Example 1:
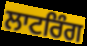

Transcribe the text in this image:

ਲਾਟਰਿੰਗ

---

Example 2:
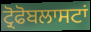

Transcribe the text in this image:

ਟ੍ਰੋਫੋਬਲਾਸਟਾਂ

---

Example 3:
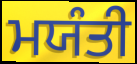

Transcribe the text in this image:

ਮਯੰਤੀ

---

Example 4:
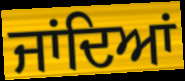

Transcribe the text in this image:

ਜਾਂਦਿਆਂ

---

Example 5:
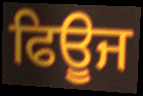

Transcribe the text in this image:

ਫਿਊਜ